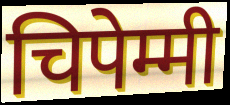
चिपेम्मी